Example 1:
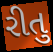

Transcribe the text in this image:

રીતુ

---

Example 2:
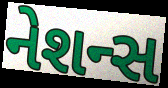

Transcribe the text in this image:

નેશન્સ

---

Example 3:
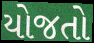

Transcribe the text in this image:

યોજતો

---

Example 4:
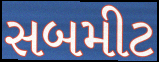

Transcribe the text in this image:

સબમીટ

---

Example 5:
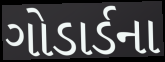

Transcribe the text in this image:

ગોડાર્ડના